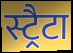
स्ट्रैटा